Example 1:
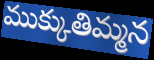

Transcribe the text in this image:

ముక్కుతిమ్మన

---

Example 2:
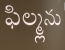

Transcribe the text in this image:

ఫిల్మ్లను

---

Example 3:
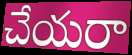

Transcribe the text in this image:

చేయరా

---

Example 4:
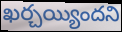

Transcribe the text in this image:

ఖర్చయ్యిందని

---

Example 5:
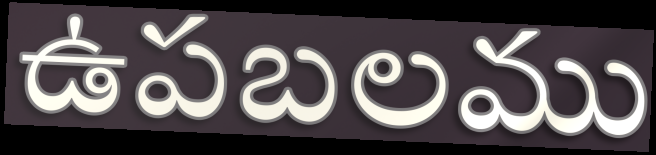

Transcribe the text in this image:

ఉపబలము